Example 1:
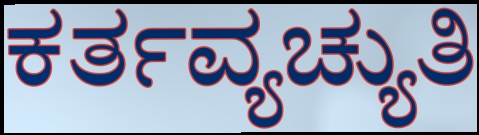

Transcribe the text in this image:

ಕರ್ತವ್ಯಚ್ಯುತಿ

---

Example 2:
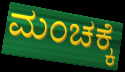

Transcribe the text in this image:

ಮಂಚಕ್ಕೆ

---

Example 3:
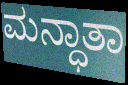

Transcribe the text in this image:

ಮನ್ಧಾತಾ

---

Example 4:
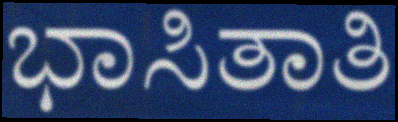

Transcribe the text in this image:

ಭಾಸಿತಾತಿ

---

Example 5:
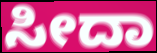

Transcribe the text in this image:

ಸೀದಾ